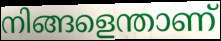
നിങ്ങളെന്താണ്